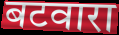
बटवारा